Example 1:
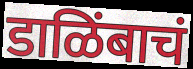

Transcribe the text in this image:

डाळिंबाचं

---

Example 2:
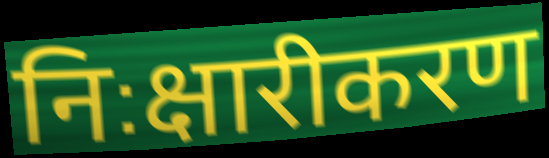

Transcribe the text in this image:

निःक्षारीकरण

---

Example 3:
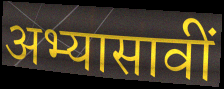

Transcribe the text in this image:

अभ्यासावीं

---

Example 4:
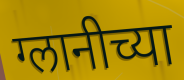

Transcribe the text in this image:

ग्लानीच्या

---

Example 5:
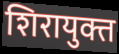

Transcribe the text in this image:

शिरायुक्त